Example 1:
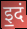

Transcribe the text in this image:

इ॒दं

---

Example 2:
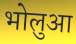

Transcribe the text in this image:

भोलुआ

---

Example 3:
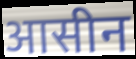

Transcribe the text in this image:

आसीन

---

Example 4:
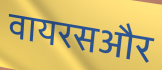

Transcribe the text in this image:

वायरसऔर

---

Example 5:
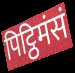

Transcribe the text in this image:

पिट्ठिमंसं